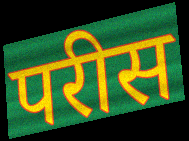
परीस